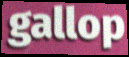
gallop